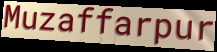
Muzaffarpur